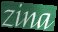
zina